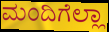
ಮಂದಿಗೆಲ್ಲಾ